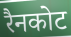
रैनकोट